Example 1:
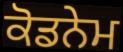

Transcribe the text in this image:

ਕੋਡਨੇਮ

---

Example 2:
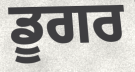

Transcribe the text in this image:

ਡੂਗਰ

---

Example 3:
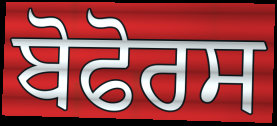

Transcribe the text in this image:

ਬੋਫੋਰਸ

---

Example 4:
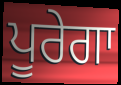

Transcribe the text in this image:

ਪੂਰੇਗਾ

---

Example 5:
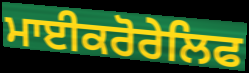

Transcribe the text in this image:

ਮਾਈਕਰੋਰੇਲਿਫ